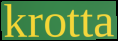
krotta